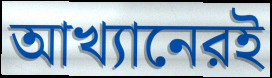
আখ্যানেরই